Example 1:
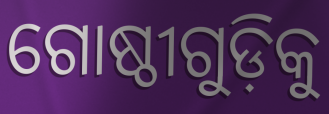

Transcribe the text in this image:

ଗୋଷ୍ଠୀଗୁଡ଼ିକୁ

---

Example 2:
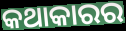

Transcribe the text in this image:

କଥାକାରର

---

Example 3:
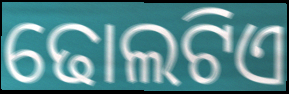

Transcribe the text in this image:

ଢୋଲଟିଏ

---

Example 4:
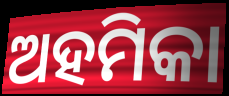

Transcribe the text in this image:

ଅହମିକା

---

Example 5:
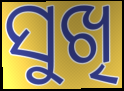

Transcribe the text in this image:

ସୁଖି